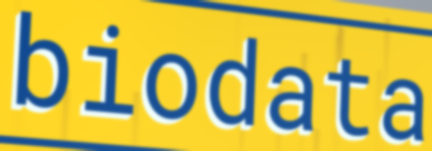
biodata